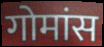
गोमांस